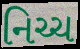
નિચ્ચ